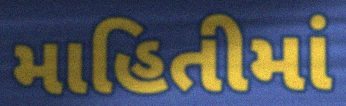
માહિતીમાં